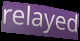
relayed